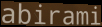
abirami